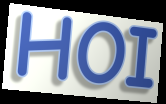
HOI